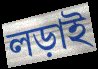
লড়াই